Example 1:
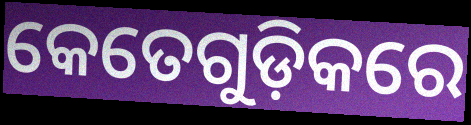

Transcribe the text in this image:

କେତେଗୁଡ଼ିକରେ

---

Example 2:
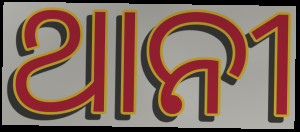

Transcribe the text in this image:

ଥାନୀ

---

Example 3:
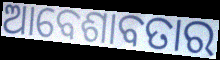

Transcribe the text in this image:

ଆବେଶାବତାର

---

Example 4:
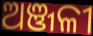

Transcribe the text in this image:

ଅଞ୍ଜଳୀ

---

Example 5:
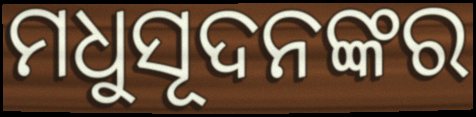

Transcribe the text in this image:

ମଧୁସୂଦନଙ୍କର